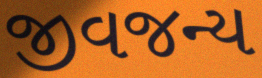
જીવજન્ય